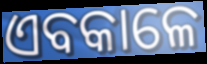
ଏବକାଳେ